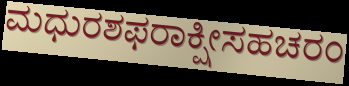
ಮಧುರಶಫರಾಕ್ಷೀಸಹಚರಂ